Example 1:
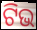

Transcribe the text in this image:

ଟିଭ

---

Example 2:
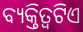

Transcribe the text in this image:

ବ୍ୟକ୍ତିତ୍ବଟିଏ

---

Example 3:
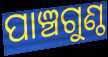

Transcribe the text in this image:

ପାଞ୍ଚଗୁଣ୍ଠ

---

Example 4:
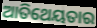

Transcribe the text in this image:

ଆତିଥେୟତାର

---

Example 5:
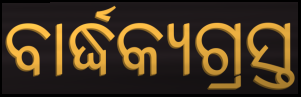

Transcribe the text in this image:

ବାର୍ଦ୍ଧକ୍ୟଗ୍ରସ୍ତ